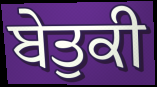
ਬੇਤੁਕੀ